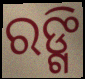
ରଙ୍ଗି